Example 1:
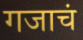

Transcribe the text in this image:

गजाचं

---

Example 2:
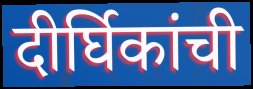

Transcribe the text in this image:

दीर्घिकांची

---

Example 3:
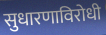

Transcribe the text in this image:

सुधारणाविरोधी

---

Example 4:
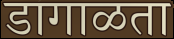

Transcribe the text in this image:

डागाळता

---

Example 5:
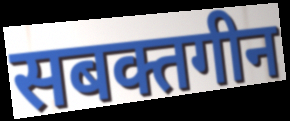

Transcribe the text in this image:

सबक्तगीन